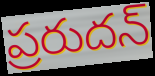
ప్రరుదన్